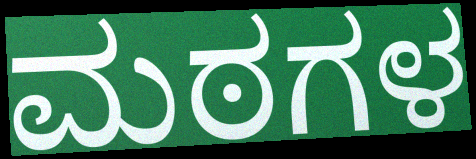
ಮಠಗಳ